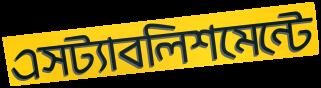
এসট্যাবলিশমেন্টে